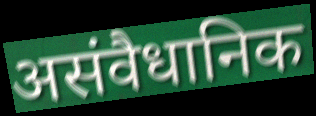
असंवैधानिक